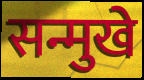
सन्मुखे